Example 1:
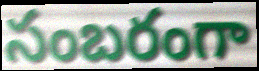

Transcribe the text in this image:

సంబరంగా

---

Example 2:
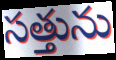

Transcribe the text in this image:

సత్తును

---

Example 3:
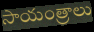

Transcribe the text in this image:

సాయంత్రాలు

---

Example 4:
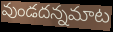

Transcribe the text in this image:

వుండదన్నమాట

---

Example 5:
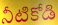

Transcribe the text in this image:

నీటికోడి